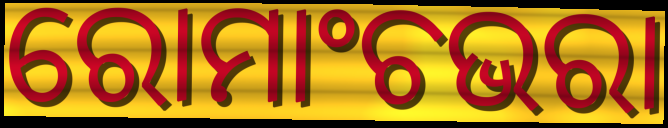
ରୋମାଂଚଭରା